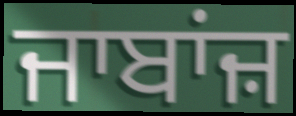
ਜਾਬਾਂਜ਼